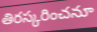
తిరస్కరించనూ